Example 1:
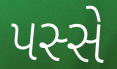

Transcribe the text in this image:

પસ્સે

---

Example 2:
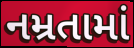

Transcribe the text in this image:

નમ્રતામાં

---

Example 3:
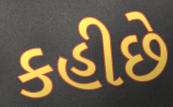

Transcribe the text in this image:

કહીછે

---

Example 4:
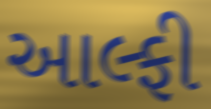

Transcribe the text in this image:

આલ્ફી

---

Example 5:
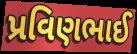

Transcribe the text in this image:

પ્રવિણભાઈ